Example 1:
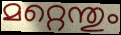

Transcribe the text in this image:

മറ്റെന്തും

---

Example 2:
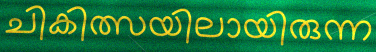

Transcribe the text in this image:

ചികിത്സയിലായിരുന്ന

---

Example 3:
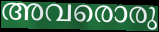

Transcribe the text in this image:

അവരൊരു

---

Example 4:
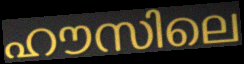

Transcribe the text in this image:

ഹൗസിലെ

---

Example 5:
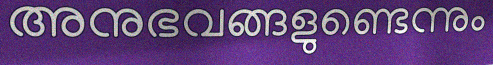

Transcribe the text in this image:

അനുഭവങ്ങളുണ്ടെന്നും